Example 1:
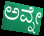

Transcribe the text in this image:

ಅವ್ನೇ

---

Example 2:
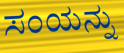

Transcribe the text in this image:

ಸಂಯನ್ನು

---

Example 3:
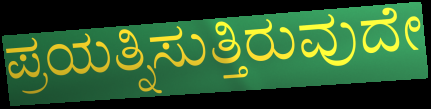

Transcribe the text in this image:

ಪ್ರಯತ್ನಿಸುತ್ತಿರುವುದೇ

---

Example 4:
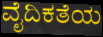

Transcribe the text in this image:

ವೈದಿಕತೆಯ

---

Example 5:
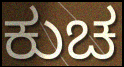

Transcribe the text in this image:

ಕುಚ